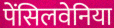
पेंसिलवेनिया